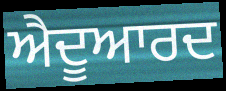
ਐਦੂਆਰਦ